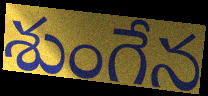
శుంగేన